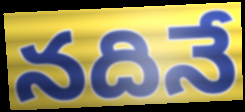
నదినే